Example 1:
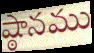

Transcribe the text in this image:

ష్ఠానము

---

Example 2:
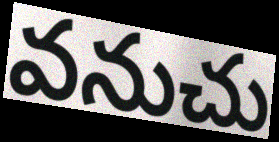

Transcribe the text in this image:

వనుచు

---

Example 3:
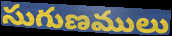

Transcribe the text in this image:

సుగుణములు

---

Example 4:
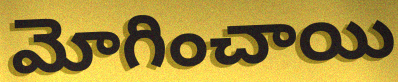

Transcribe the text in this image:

మోగించాయి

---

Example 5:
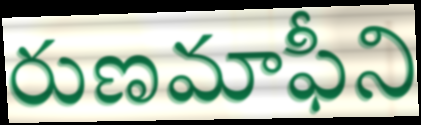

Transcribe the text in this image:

రుణమాఫీని